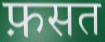
फ़सत